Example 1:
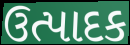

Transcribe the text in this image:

ઉત્પાદક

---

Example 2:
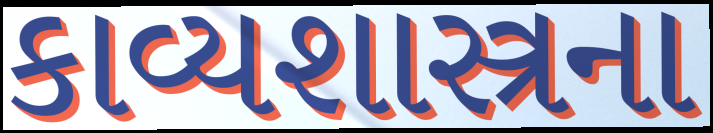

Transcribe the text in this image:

કાવ્યશાસ્ત્રના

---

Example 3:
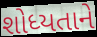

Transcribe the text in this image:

શોધ્યતાને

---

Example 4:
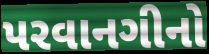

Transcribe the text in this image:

પરવાનગીનો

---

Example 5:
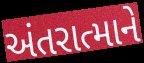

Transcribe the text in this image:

અંતરાત્માને